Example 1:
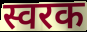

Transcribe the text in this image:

स्वरक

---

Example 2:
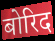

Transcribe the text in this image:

बोरिद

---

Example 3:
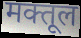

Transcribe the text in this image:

मक्तूल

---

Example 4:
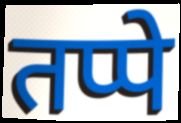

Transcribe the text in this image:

तप्पे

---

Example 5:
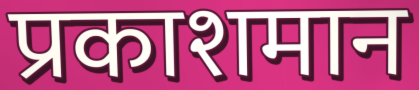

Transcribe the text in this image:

प्रकाशमान